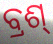
ବ୍ରଶ୍